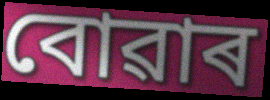
বোৱাৰ